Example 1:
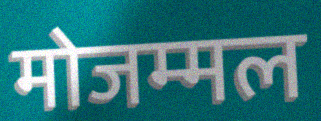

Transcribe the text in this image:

मोजम्मल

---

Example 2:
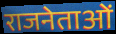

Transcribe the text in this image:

राजनेताओं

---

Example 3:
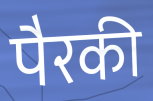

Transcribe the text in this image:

पैरकी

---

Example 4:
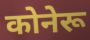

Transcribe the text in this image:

कोनेरू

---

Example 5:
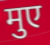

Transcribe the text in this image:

मुए